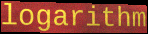
logarithm